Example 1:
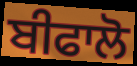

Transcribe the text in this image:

ਬੀਫਾਲੋ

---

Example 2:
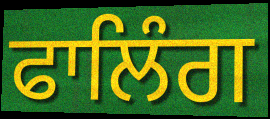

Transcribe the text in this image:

ਫਾਲਿੰਗ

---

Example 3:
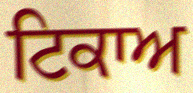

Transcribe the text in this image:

ਟਿਕਾਅ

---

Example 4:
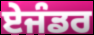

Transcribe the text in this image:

ਏਜੰਡਰ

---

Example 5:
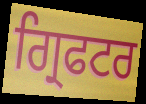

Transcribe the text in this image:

ਗ੍ਰਿਫਟਰ